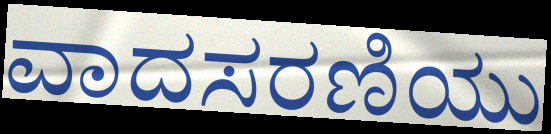
ವಾದಸರಣಿಯು